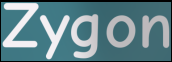
Zygon